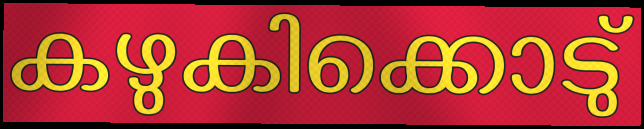
കഴുകിക്കൊടു്